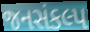
જનસંકલ્પ